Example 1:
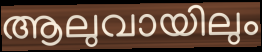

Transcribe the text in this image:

ആലുവായിലും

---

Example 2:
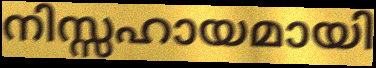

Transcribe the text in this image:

നിസ്സഹായമായി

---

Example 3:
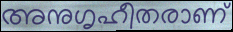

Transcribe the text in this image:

അനുഗൃഹീതരാണ്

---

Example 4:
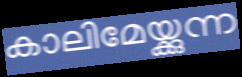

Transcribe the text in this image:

കാലിമേയ്ക്കുന്ന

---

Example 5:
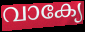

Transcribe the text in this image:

വാക്യേ